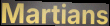
Martians